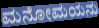
ಮನೋಮಯನು